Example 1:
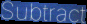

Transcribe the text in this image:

Subtract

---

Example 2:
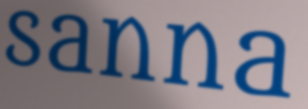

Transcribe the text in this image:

sanna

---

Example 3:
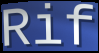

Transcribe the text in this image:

Rif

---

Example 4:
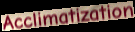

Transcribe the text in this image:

Acclimatization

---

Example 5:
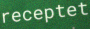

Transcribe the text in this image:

receptet